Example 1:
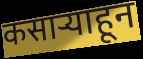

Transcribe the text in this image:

कसाऱ्याहून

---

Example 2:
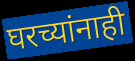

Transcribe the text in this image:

घरच्यांनाही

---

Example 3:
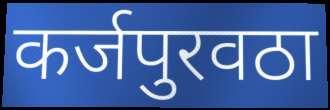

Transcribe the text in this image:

कर्जपुरवठा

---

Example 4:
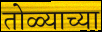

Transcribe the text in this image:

तोळ्याच्या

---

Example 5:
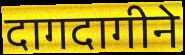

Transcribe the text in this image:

दागदागीने